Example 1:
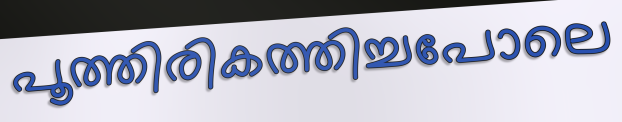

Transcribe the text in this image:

പൂത്തിരികത്തിച്ചപോലെ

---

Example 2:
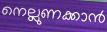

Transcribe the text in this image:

നെല്ലുണക്കാൻ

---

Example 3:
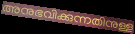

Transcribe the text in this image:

അനുഭവിക്കുന്നതിനുള്ള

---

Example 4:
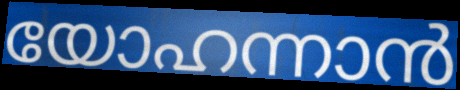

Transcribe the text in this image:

യോഹന്നാൻ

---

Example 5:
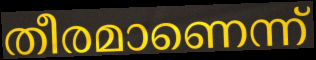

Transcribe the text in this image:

തീരമാണെന്ന്